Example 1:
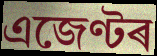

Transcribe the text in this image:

এজেণ্টৰ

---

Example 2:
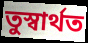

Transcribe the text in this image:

তুস্বাৰ্থত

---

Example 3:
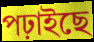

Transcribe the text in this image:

পঢ়াইছে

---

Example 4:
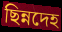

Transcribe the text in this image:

ছিন্নদেহ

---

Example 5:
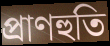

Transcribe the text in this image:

প্ৰাণহুতি